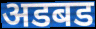
अडबड